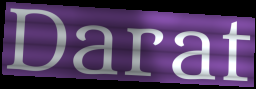
Darat